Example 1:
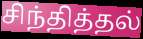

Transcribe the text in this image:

சிந்தித்தல்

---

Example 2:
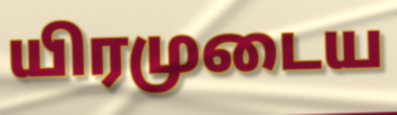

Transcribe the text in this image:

யிரமுடைய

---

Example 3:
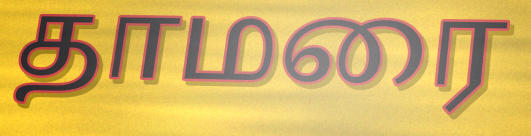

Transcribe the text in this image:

தாமரை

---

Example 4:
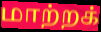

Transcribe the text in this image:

மாற்றக்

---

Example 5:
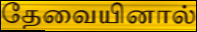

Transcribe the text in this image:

தேவையினால்